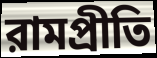
রামপ্রীতি